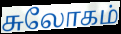
சுலோகம்